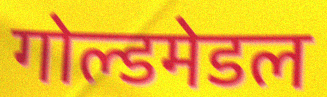
गोल्डमेडल